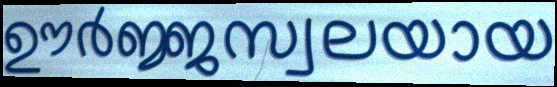
ഊർജ്ജസ്വലയായ